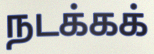
நடக்கக்